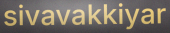
sivavakkiyar